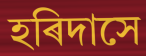
হৰিদাসে